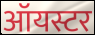
ऑयस्टर